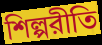
শিল্পরীতি